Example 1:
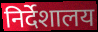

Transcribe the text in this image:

निर्देशालय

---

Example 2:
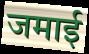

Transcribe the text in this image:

जमाई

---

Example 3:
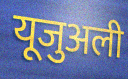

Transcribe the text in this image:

यूजुअली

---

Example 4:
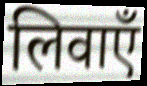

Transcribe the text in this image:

लिवाएँ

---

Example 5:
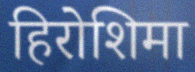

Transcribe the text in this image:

हिरोशिमा